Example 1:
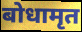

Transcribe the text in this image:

बोधामृत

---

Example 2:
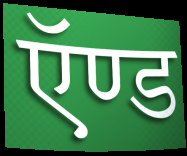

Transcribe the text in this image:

ऍण्ड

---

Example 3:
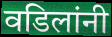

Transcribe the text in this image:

वडिलांनी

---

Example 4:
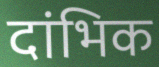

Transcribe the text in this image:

दांभिक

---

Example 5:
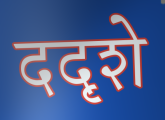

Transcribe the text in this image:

ददृशे